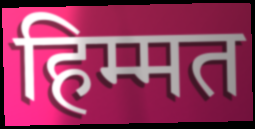
हिम्‍मत